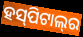
ହସ୍‍ପିଟାଲ୍‍ର